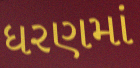
ધરણમાં